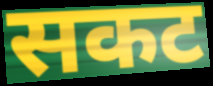
सकट